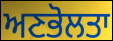
ਅਣਭੋਲਤਾ